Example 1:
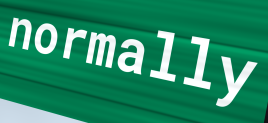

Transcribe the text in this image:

normally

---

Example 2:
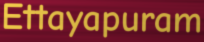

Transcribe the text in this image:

Ettayapuram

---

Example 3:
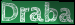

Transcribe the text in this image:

Draba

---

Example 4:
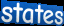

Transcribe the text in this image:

states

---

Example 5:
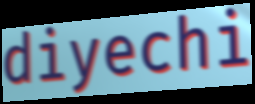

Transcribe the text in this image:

diyechi